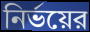
নির্ভয়ের